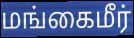
மங்கைமீர்